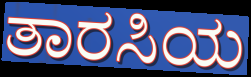
ತಾರಸಿಯ